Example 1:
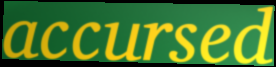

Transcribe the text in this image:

accursed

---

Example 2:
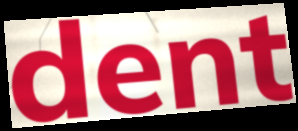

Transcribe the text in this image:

dent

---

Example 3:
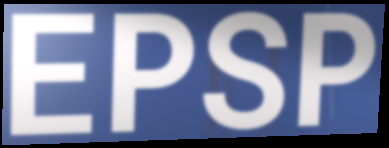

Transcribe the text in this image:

EPSP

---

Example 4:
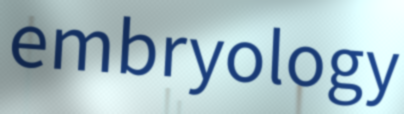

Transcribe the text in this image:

embryology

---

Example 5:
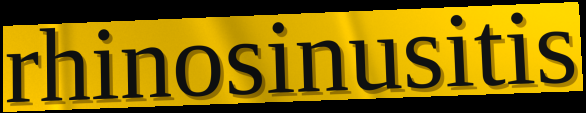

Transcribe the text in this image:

rhinosinusitis